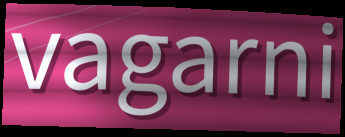
vagarni